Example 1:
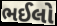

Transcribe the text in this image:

ભઈલો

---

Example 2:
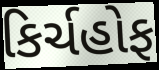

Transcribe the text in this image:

કિર્ચહોફ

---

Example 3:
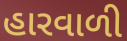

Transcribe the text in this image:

હારવાળી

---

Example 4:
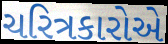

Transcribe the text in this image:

ચરિત્રકારોએ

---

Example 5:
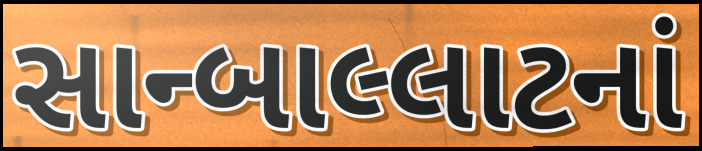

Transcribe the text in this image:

સાન્બાલ્લાટનાં